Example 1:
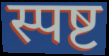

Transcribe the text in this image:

स्पष्ट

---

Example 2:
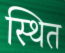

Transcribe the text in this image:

स्थित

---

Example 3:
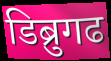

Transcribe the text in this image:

डिब्रुगढ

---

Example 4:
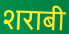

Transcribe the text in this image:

शराबी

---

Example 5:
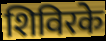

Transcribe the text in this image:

शिविरके